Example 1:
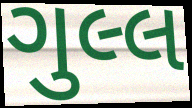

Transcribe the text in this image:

ગુલ્લ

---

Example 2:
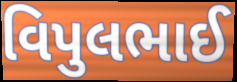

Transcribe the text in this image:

વિપુલભાઈ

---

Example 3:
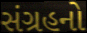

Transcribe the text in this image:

સંગ્રહનો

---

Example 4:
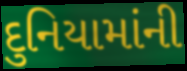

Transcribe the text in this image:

દુનિયામાંની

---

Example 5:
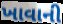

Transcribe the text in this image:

ખાવાની